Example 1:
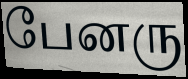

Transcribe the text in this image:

பேனரு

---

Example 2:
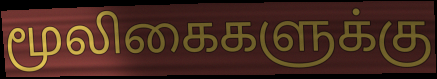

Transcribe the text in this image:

மூலிகைகளுக்கு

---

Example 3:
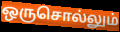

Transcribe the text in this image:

ஒருசொல்லும்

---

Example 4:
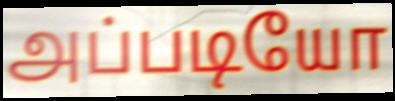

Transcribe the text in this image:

அப்படியோ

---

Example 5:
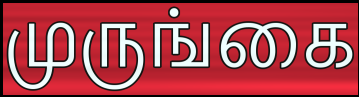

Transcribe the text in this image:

முருங்கை